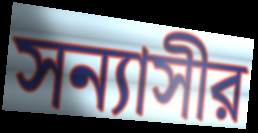
সন্যাসীর